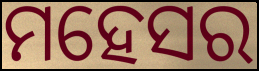
ମହେସର